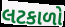
લટકાળો